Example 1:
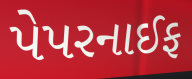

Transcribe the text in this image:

પેપરનાઈફ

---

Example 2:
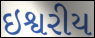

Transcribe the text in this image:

ઇશ્વરીય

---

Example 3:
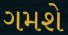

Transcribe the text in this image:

ગમશે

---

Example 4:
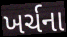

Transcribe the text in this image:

ખર્ચના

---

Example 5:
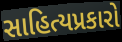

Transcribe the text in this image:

સાહિત્યપ્રકારો